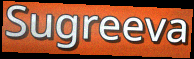
Sugreeva